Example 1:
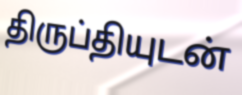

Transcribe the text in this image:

திருப்தியுடன்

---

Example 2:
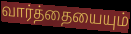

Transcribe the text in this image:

வார்த்தையையும்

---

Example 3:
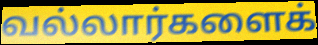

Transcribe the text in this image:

வல்லார்களைக்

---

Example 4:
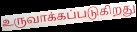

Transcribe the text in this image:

உருவாக்கப்படுகிறது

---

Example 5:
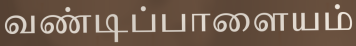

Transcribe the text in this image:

வண்டிப்பாளையம்